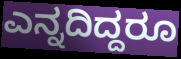
ಎನ್ನದಿದ್ದರೂ